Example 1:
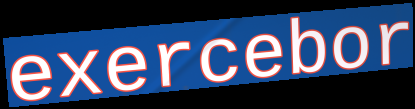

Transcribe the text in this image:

exercebor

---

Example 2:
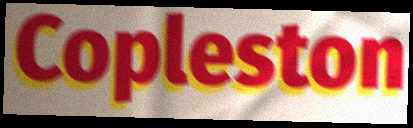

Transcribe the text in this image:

Copleston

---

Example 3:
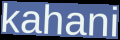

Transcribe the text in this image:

kahani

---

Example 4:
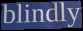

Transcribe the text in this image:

blindly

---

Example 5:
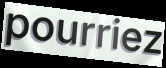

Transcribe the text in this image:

pourriez